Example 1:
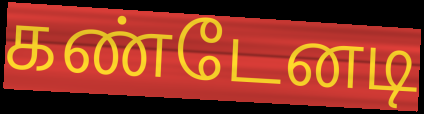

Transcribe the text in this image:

கண்டேனடி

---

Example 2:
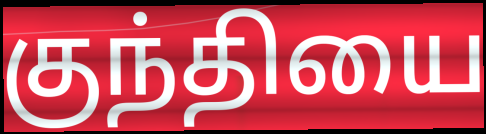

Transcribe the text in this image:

குந்தியை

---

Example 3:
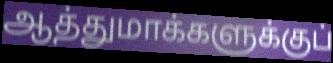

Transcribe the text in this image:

ஆத்துமாக்களுக்குப்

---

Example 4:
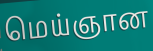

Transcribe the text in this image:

மெய்ஞான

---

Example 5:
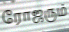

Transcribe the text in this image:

ரோஜரும்